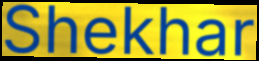
Shekhar